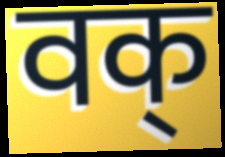
वक्